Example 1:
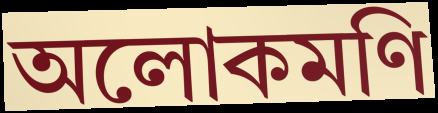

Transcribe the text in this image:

অলোকমণি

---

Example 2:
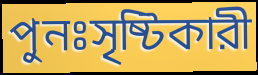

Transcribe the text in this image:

পুনঃসৃষ্টিকারী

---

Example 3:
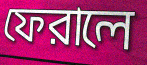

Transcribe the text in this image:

ফেরালে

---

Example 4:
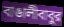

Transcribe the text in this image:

বাঙালীবাবুর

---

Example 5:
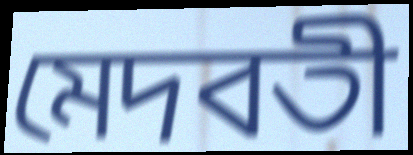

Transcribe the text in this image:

মেদবতী